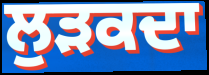
ਲੁੜਕਦਾ